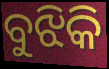
ବୁଝିକି